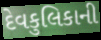
દેવકુલિકાની